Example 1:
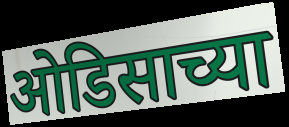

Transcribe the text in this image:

ओडिसाच्या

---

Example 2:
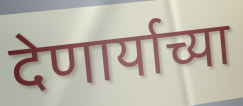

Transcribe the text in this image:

देणार्याच्या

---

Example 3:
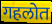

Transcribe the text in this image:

गहलोत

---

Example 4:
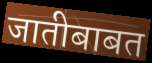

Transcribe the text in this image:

जातीबाबत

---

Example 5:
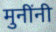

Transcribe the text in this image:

मुनींनी